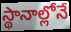
స్థానాల్లోనే